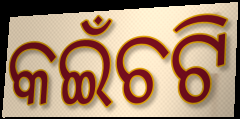
କଇଁଚଟି